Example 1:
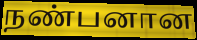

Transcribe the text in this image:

நண்பனான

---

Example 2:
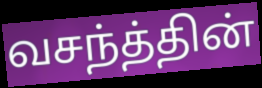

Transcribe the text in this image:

வசந்த்தின்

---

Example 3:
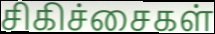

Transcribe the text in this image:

சிகிச்சைகள்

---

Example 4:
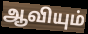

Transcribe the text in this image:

ஆவியும்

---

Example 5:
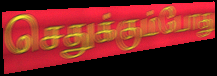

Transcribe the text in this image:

செதுக்கும்போது